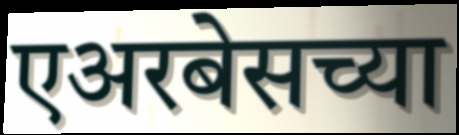
एअरबेसच्या